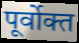
पूर्वोक्‍त